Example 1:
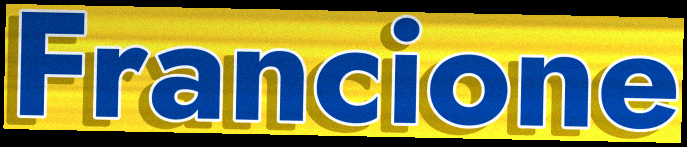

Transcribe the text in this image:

Francione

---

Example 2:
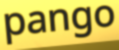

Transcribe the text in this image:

pango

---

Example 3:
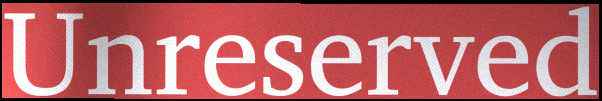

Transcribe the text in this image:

Unreserved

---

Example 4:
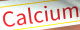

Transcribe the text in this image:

Calcium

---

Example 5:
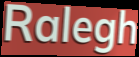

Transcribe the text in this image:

Ralegh